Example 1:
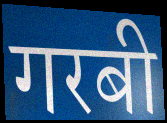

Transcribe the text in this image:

गरबी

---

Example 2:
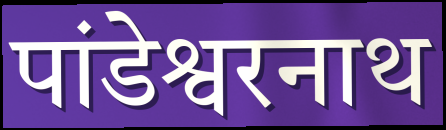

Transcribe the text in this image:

पांडेश्वरनाथ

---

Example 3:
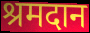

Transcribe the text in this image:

श्रमदान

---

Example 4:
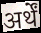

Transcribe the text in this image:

अर्थें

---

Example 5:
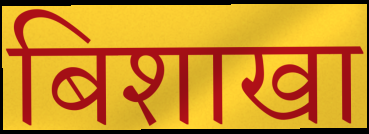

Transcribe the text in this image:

बिशाखा